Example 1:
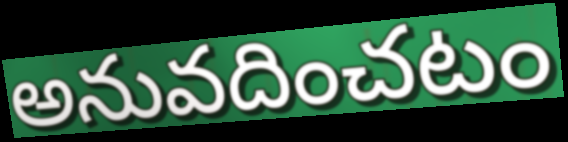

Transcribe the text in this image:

అనువదించటం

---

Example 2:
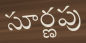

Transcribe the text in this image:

సూర్ణపు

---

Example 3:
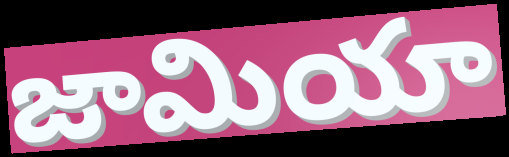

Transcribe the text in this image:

జామియా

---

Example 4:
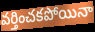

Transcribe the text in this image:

వర్తించకపోయినా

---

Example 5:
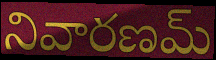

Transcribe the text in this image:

నివారణమ్